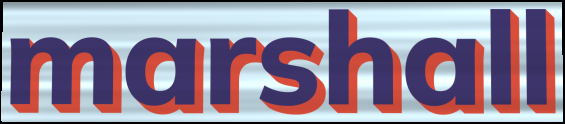
marshall